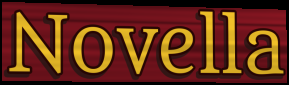
Novella